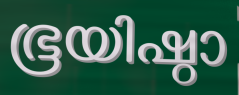
ഭൂയിഷ്ഠാ